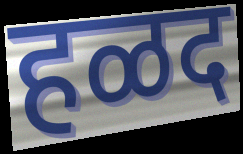
हळद